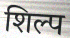
शिल्‍प